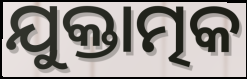
ଯୁକ୍ତାତ୍ମକ